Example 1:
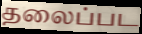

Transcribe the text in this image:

தலைப்பட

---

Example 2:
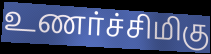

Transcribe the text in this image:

உணர்ச்சிமிகு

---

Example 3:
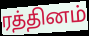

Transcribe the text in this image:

ரத்தினம்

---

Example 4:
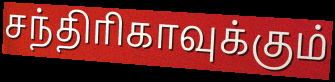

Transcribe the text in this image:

சந்திரிகாவுக்கும்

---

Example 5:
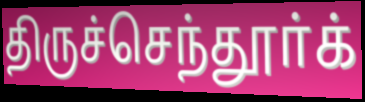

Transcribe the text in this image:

திருச்செந்தூர்க்